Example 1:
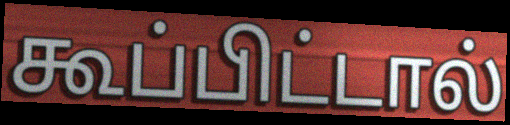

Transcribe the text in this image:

கூப்பிட்டால்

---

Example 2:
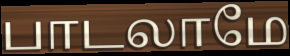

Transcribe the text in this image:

பாடலாமே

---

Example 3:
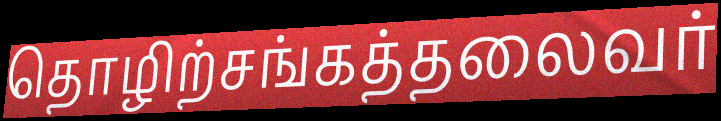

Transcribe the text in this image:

தொழிற்சங்கத்தலைவர்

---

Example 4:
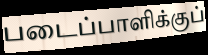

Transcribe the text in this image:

படைப்பாளிக்குப்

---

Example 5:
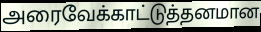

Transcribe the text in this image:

அரைவேக்காட்டுத்தனமான